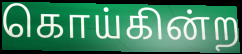
கொய்கின்ற